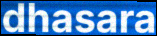
dhasara